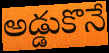
అడ్డుకొనే